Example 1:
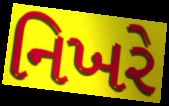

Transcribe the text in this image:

નિખરે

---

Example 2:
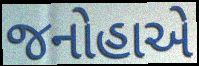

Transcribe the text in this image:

જનોહાએ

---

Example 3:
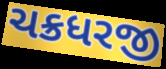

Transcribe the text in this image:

ચક્રધરજી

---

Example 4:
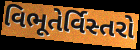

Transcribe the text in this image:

વિભૂતેર્વિસ્તરો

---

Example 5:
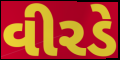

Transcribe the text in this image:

વીરડે